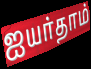
ஐயர்தாம்